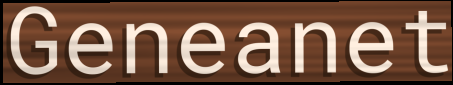
Geneanet